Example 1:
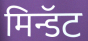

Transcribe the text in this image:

मिन्डॅट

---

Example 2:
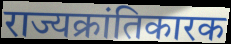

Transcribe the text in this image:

राज्यक्रांतिकारक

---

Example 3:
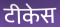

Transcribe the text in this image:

टीकेस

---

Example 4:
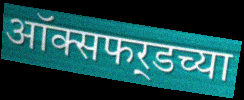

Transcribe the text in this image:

ऑक्सफर्डच्या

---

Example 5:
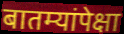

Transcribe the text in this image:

बातम्यांपेक्षा